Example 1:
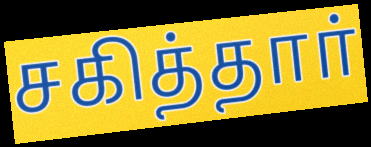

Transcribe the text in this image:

சகித்தார்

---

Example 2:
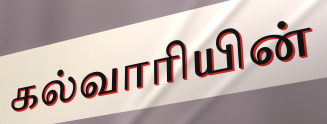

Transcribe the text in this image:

கல்வாரியின்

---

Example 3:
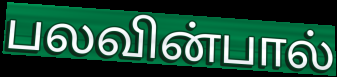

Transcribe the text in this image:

பலவின்பால்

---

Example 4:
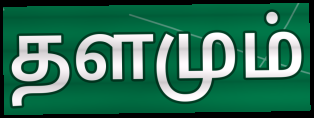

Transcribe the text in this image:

தளமும்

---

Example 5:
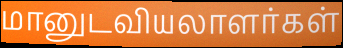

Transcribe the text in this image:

மானுடவியலாளர்கள்